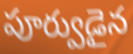
పూర్వుడైన